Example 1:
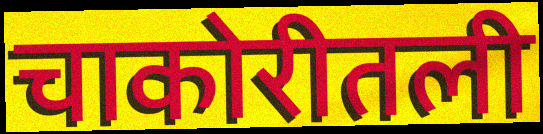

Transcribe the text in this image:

चाकोरीतली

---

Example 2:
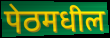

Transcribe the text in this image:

पेठमधील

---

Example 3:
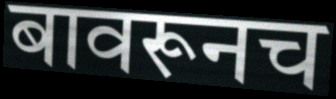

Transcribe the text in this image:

बावरूनच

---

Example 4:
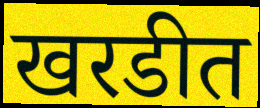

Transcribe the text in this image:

खरडीत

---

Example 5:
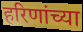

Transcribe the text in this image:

हरिणांच्या